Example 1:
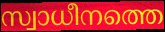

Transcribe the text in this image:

സ്വാധീനത്തെ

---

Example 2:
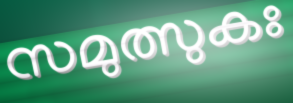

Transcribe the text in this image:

സമുത്സുകഃ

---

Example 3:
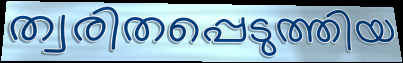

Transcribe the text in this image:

ത്വരിതപ്പെടുത്തിയ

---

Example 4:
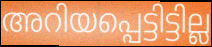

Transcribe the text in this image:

അറിയപ്പെട്ടിട്ടില്ല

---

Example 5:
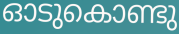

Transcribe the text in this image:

ഓടുകൊണ്ടു